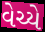
વેચ્યે